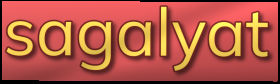
sagalyat